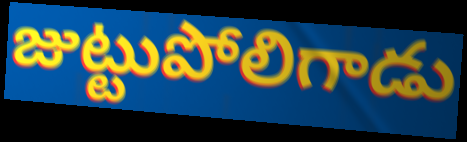
జుట్టుపోలిగాడు